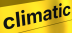
climatic